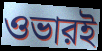
ওভারই